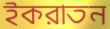
ইকরাতন